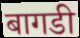
बागडी